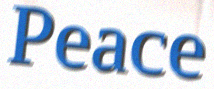
Peace